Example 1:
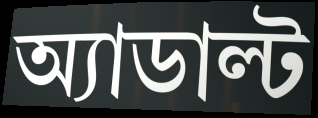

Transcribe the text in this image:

অ্যাডাল্ট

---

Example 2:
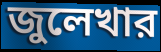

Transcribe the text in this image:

জুলেখার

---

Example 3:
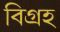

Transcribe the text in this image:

বিগ্রহ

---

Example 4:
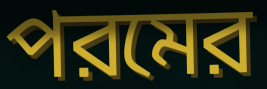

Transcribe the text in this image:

পরমের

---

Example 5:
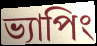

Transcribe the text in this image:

ভ্যাপিং